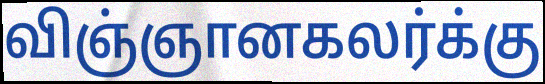
விஞ்ஞானகலர்க்கு